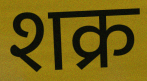
शक्र